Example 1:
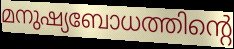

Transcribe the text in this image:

മനുഷ്യബോധത്തിന്റെ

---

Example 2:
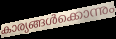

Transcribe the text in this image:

കാര്യങ്ങൾക്കൊന്നും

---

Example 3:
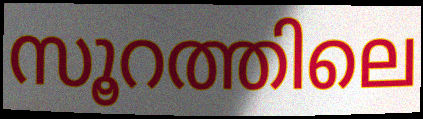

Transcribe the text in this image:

സൂറത്തിലെ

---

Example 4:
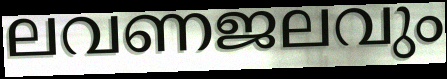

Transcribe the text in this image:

ലവണജലവും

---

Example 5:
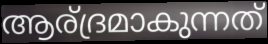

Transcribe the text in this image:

ആര്ദ്രമാകുന്നത്